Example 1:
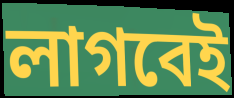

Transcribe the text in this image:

লাগবেই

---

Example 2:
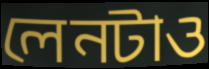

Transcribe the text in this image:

লেনটাও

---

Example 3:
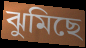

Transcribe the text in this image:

ঝুমিছে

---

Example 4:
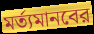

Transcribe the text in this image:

মর্ত্যমানবের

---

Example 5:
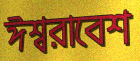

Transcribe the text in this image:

ঈশ্বরাবেশ